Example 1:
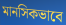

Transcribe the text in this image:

মানসিকভাবে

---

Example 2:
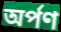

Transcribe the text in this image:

অর্পণ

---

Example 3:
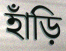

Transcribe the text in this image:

হাঁড়ি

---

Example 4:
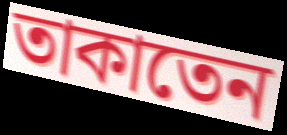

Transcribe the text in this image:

তাকাতেন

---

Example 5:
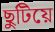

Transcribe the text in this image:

ছুটিয়ে